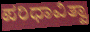
ಪರಿಧಾವಿತ್ವಾ